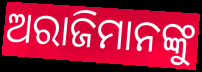
ଅରାଜିମାନଙ୍କୁ